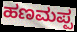
ಹಣಮಪ್ಪ